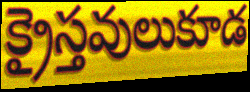
క్రైస్తవులుకూడ